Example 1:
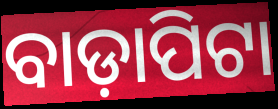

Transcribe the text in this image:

ବାଡ଼ାପିଟା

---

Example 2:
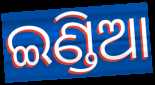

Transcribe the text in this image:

ଇଣ୍ଡିଆ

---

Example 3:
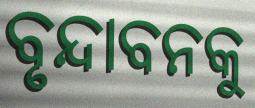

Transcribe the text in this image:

ବୃନ୍ଦାବନକୁ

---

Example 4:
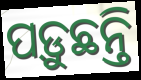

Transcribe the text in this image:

ପଡ଼ୁଛନ୍ତି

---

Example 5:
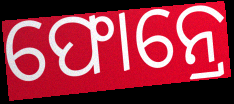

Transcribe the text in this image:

ଫୋନ୍ରେ